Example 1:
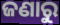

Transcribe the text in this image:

ଜଣାରୁ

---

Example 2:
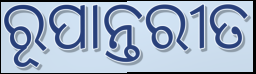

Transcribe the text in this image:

ରୂପାନ୍ତରୀତ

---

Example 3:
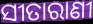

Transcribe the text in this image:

ସୀତାରାଣୀ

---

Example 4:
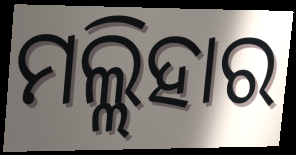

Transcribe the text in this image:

ମଲ୍ଲିହାର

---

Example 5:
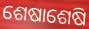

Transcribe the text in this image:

ଶେଷାଶେଷି